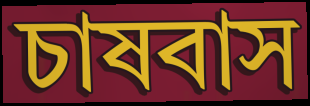
চাষবাস